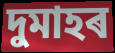
দুমাহৰ